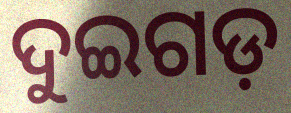
ଦୁଇଗଡ଼